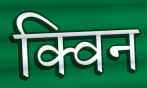
क्विन